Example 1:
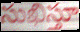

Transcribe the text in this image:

సుఖిస్తూ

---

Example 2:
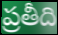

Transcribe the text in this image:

ప్రతీది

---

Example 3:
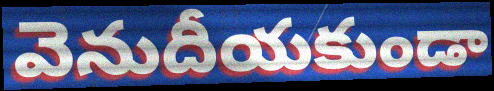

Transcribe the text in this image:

వెనుదీయకుండా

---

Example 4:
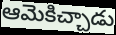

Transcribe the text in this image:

ఆమెకిచ్చాడు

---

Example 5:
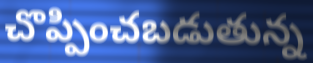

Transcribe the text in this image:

చొప్పించబడుతున్న